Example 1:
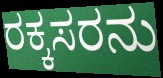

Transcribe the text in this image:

ರಕ್ಕಸರನು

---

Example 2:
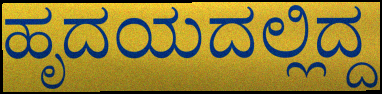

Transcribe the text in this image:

ಹೃದಯದಲ್ಲಿದ್ದ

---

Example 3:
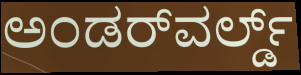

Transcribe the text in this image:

ಅಂಡರ್‌ವರ್ಲ್ಡ್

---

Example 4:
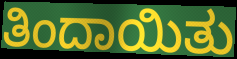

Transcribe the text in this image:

ತಿಂದಾಯಿತು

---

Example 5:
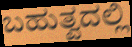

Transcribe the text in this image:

ಬಹುತ್ವದಲ್ಲಿ